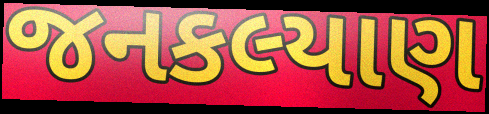
જનકલ્યાણ